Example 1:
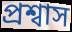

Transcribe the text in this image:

প্রশ্বাস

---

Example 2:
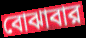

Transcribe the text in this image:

বোঝাবার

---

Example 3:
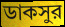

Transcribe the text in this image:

ডাকসুর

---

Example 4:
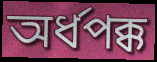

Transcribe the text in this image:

অর্ধপক্ক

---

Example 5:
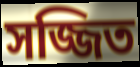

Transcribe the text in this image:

সজ্জিত